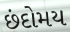
છંદોમય